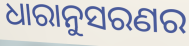
ଧାରାନୁସରଣର